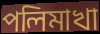
পলিমাখা